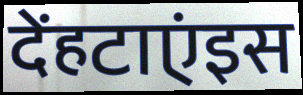
देंहटाएंइस